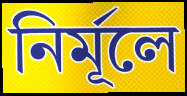
নির্মূলে